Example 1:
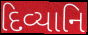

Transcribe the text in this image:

દિવ્યાનિ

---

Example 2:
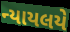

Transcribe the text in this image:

ન્યાયલયે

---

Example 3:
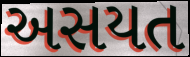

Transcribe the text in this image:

અસયત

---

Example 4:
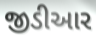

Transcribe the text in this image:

જીડીઆર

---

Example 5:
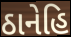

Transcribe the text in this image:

ઠાનેહિ